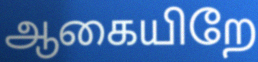
ஆகையிறே